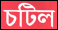
চটিল